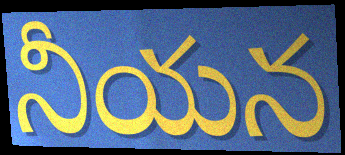
నీయన